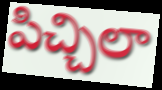
పిచ్చిలా